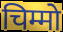
चिम्मो